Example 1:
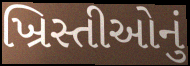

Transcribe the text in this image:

ખ્રિસ્તીઓનું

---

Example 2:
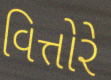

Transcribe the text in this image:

વિત્તોરે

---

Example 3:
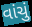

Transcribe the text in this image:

વાંચું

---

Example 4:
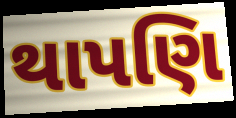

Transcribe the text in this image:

થાપણિ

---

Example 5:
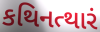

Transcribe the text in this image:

કથિનત્થારં